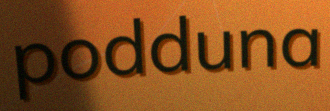
podduna